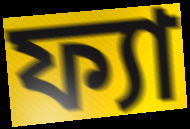
ফ্যা